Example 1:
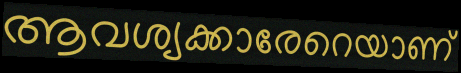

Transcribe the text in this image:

ആവശ്യക്കാരേറെയാണ്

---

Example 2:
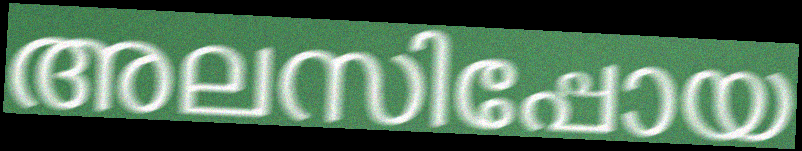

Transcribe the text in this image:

അലസിപ്പോയ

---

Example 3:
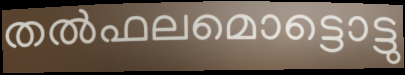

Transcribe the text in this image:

തൽഫലമൊട്ടൊട്ടു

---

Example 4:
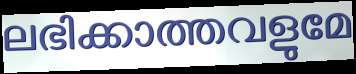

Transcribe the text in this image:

ലഭിക്കാത്തവളുമേ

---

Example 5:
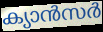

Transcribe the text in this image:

ക്യാൻസർ